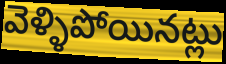
వెళ్ళిపోయినట్లు